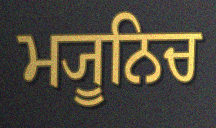
ਮ੍ਯੂਨਿਚ